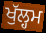
ਖੁੱਲ੍ਹਮ